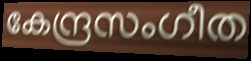
കേന്ദ്രസംഗീത